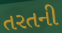
તરતની